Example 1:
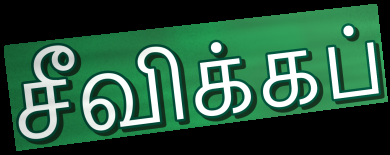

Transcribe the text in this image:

சீவிக்கப்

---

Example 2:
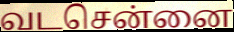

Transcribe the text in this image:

வடசென்னை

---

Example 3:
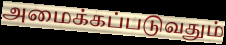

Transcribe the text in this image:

அமைக்கப்படுவதும்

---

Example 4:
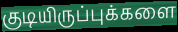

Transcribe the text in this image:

குடியிருப்புக்களை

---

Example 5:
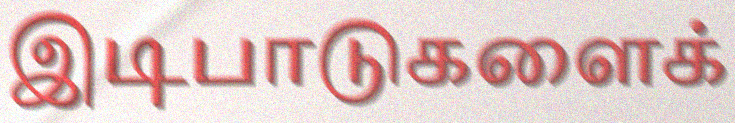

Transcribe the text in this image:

இடிபாடுகளைக்